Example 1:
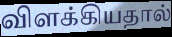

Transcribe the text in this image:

விளக்கியதால்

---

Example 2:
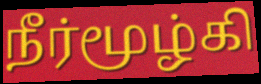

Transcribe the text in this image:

நீர்மூழ்கி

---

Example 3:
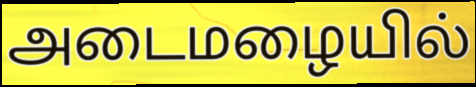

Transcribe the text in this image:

அடைமழையில்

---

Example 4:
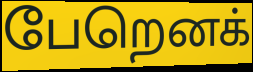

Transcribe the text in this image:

பேறெனக்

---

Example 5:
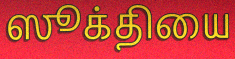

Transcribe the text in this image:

ஸூக்தியை